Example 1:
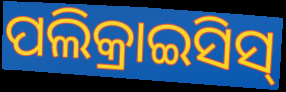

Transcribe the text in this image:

ପଲିକ୍ରାଇସିସ୍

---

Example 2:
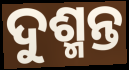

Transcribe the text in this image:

ଦୁଶ୍ମନ୍ତ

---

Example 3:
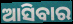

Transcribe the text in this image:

ଆସିବାର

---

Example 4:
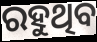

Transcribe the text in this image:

ରହୁଥିବ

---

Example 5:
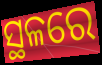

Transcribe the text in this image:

ସ୍ଥଳରେ